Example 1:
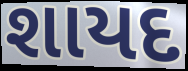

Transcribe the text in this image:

શાયદ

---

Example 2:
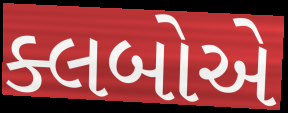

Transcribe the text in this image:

ક્લબોએ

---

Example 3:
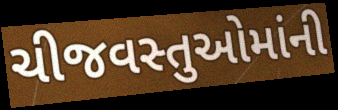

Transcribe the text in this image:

ચીજવસ્તુઓમાંની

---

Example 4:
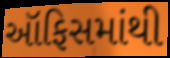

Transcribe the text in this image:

ઑફિસમાંથી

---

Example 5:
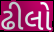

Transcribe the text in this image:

ઢીલો